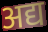
अद्य